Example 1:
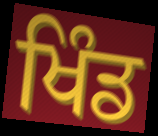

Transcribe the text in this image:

ਖਿੰਡ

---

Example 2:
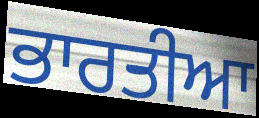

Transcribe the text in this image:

ਭਾਰਤੀਆ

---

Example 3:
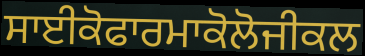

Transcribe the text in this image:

ਸਾਈਕੋਫਾਰਮਾਕੋਲੋਜੀਕਲ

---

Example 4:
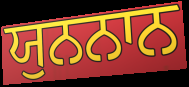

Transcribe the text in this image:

ਯੁਨਨਾਨ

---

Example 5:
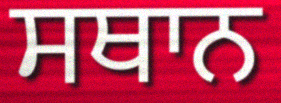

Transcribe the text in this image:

ਸਥਾਨ